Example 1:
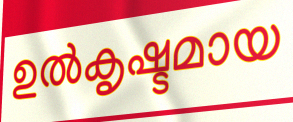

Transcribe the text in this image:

ഉൽകൃഷ്ടമായ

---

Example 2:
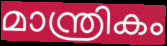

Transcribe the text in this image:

മാന്ത്രികം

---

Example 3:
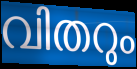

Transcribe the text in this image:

വിതറും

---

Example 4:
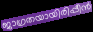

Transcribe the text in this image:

ജാഗ്രതയായിരിപ്പീൻ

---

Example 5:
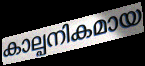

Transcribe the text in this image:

കാല്പനികമായ